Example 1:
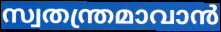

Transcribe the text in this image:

സ്വതന്ത്രമാവാൻ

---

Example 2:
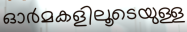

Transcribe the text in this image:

ഓർമകളിലൂടെയുള്ള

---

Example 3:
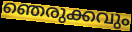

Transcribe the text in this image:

ഞെരുക്കവും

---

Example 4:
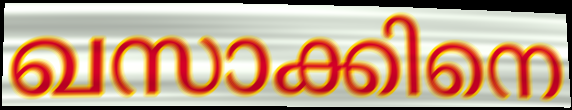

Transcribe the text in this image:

ഖസാക്കിനെ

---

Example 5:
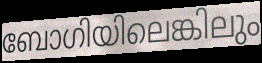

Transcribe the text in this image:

ബോഗിയിലെങ്കിലും